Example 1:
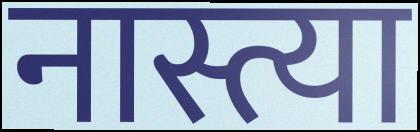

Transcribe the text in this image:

नास्त्या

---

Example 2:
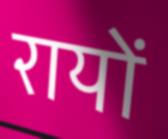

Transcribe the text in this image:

रायों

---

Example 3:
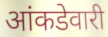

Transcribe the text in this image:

आंकडेवारी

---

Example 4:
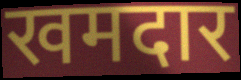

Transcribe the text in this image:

खमदार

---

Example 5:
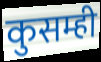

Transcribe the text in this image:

कुसम्ही